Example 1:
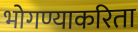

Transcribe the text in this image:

भोगण्याकरिता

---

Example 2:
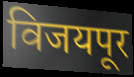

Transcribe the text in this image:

विजयपूर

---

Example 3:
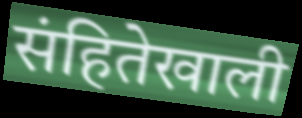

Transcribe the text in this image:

संहितेखाली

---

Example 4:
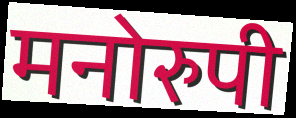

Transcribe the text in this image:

मनोरुपी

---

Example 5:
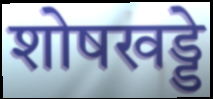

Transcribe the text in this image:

शोषखड्डे